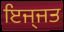
ਇਜ੍ਜਤ